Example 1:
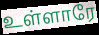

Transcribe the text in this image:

உள்ளாரே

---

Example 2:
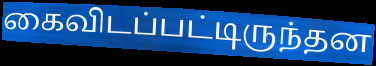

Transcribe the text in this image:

கைவிடப்பட்டிருந்தன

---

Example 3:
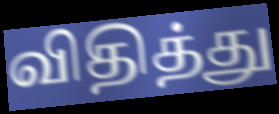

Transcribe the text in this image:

விதித்து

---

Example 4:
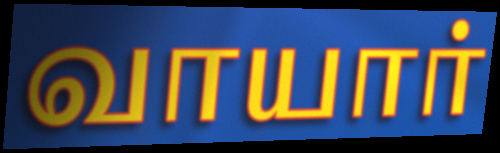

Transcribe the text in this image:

வாயார்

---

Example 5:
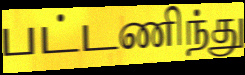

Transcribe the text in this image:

பட்டணிந்து